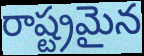
రాష్ట్రమైన